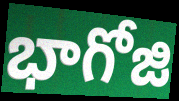
భాగోజి